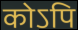
कोऽपि